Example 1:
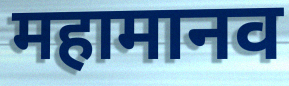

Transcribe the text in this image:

महामानव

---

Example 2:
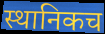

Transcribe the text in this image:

स्थानिकच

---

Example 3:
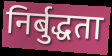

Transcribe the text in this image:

निर्बुद्धता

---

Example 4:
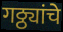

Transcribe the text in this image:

गठ्ठ्यांचे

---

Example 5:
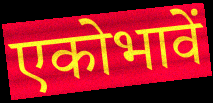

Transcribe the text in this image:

एकोभावें